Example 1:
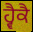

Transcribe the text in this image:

ਹ੍ਵੈਕੈ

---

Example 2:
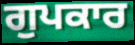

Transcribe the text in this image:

ਗੁਪਕਾਰ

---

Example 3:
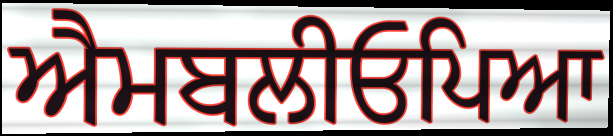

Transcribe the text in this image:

ਐਮਬਲੀਓਪਿਆ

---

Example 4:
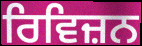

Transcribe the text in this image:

ਰਿਵਿਜ਼ਨ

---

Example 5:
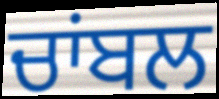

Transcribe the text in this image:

ਚਾਂਬਲ